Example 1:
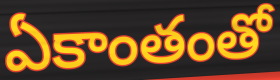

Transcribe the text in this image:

ఏకాంతంతో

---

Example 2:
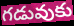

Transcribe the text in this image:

గడువుకు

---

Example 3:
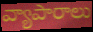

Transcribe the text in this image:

వ్యాపారాలు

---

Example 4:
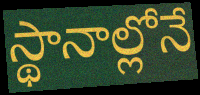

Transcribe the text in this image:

స్థానాల్లోనే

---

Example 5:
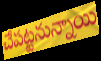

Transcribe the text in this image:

చేపట్టనున్నాయి